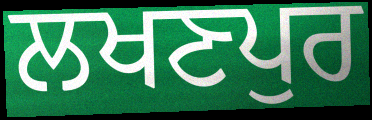
ਲਖਣਪੁਰ